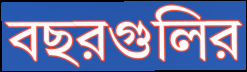
বছরগুলির